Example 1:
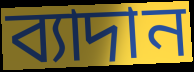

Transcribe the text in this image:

ব্যাদান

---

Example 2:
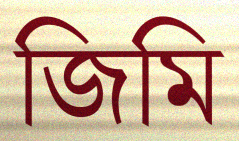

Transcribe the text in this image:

জিমি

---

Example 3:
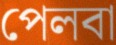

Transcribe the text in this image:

পেলবা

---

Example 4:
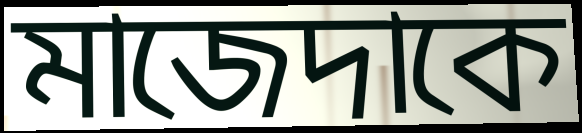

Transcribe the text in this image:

মাজেদাকে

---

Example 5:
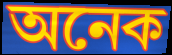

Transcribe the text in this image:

অনেক